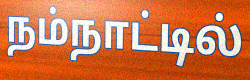
நம்நாட்டில்